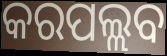
କରପଲ୍ଲବ